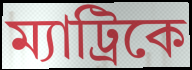
ম্যাট্রিকে